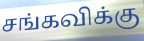
சங்கவிக்கு